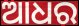
ଆଧର